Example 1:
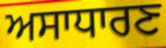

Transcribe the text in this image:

ਅਸਾਧਾਰਣ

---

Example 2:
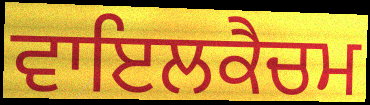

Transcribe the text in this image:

ਵਾਇਲਕੈਚਮ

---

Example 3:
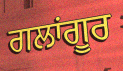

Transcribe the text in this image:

ਗਲਾਂਗੂਰ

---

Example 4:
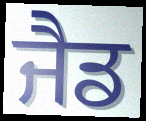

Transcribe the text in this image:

ਜੈਡ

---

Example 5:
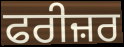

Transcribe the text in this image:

ਫਰੀਜ਼ਰ